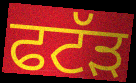
ਫਟੱੜ